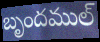
బృందముల్